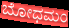
ಬೋಧಮಂ